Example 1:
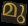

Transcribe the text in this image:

മു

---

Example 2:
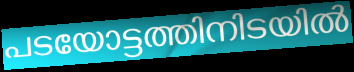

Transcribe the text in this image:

പടയോട്ടത്തിനിടയിൽ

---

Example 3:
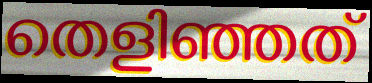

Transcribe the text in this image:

തെളിഞ്ഞത്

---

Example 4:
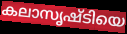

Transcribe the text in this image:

കലാസൃഷ്ടിയെ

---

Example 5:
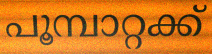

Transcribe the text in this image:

പൂമ്പാറ്റക്ക്